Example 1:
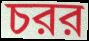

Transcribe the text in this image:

চরর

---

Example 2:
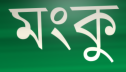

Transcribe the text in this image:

মংকু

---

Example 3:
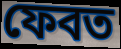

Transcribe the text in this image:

ফেবত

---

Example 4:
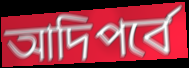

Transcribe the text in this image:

আদিপর্বে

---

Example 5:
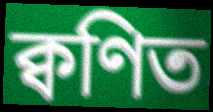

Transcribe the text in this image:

ক্বণিত